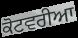
ਕੋਟਵਰੀਆ